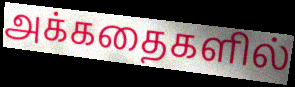
அக்கதைகளில்